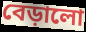
বেড়ালো